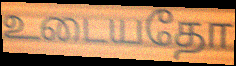
உடையதோ